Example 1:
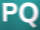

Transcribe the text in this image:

PQ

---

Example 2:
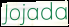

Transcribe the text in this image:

Jojada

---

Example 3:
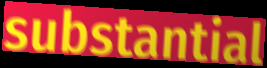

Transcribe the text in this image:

substantial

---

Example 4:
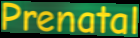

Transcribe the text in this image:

Prenatal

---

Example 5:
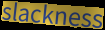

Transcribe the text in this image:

slackness